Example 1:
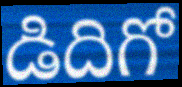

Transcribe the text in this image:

డిదిగో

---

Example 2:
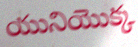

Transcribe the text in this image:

యునియొక్క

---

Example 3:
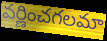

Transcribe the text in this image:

వర్ణించగలమా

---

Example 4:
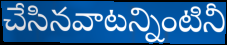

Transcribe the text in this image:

చేసినవాటన్నింటినీ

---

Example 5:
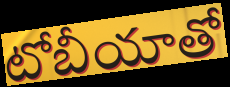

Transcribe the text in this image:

టోబీయాతో